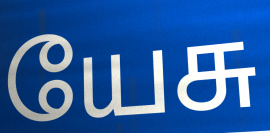
யேசு